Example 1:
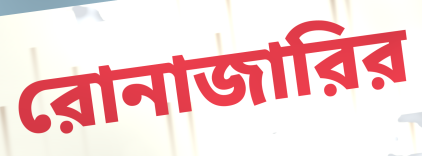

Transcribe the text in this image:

রোনাজারির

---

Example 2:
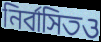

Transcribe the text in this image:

নির্বাসিতও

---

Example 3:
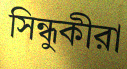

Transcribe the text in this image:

সিন্ধুকীরা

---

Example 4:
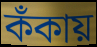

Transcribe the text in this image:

কঁকায়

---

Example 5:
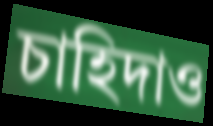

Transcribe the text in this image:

চাহিদাও